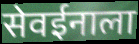
सेवईनाला